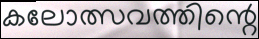
കലോത്സവത്തിന്റെ